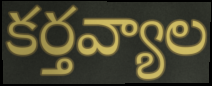
కర్తవ్యాల